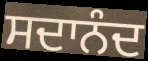
ਸਦਾਨੰਦ